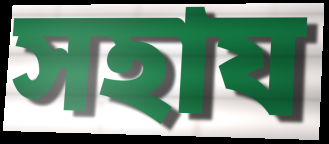
সহায